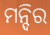
ମନ୍ଦିର